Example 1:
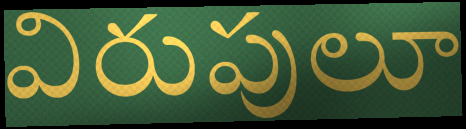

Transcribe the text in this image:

విరుపులూ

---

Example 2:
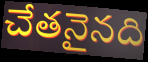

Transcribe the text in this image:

చేతనైనది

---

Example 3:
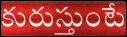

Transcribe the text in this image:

కురుస్తుంటే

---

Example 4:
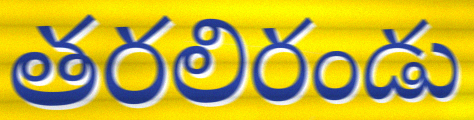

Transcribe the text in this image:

తరలిరండు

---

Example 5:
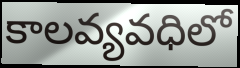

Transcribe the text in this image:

కాలవ్యవధిలో